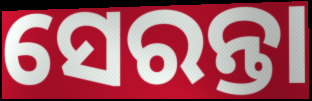
ସେରନ୍ତା